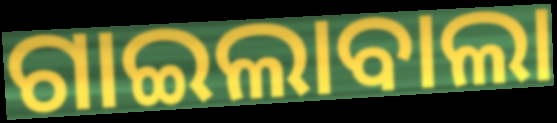
ଗାଇଲାବାଲା